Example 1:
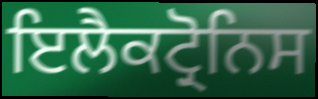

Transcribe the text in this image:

ਇਲੈਕਟ੍ਰੋਨਿਸ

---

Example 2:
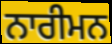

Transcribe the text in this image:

ਨਾਰੀਮਨ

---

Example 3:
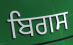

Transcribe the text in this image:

ਬਿਗਸ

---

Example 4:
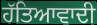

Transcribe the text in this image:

ਹੱਤਿਆਵਾਦੀ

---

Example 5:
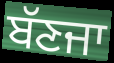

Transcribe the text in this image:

ਬੱਣਜਾ